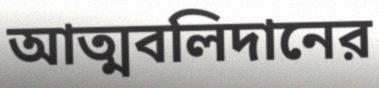
আত্মবলিদানের